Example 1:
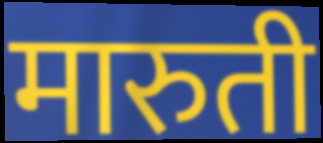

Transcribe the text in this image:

मारुती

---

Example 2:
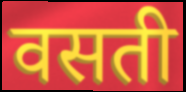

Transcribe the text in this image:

वसती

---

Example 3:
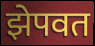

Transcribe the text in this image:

झेपवत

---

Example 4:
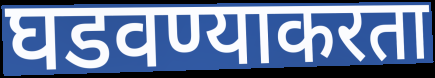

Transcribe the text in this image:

घडवण्याकरता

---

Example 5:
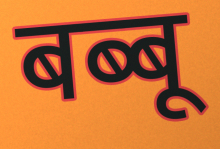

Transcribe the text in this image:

बब्बू